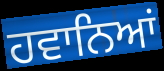
ਹਵਾਨਿਆਂ